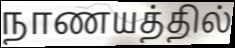
நாணயத்தில்